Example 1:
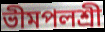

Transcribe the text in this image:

ভীমপলশ্রী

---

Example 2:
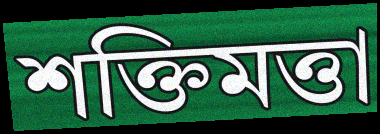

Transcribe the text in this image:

শক্তিমত্তা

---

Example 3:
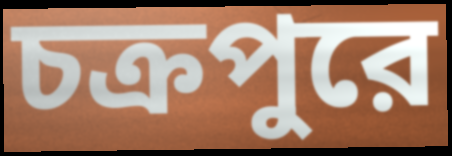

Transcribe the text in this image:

চক্রপুরে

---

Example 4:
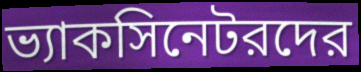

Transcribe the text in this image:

ভ্যাকসিনেটরদের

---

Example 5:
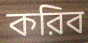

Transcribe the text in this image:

করিব